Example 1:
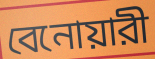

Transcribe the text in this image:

বেনোয়ারী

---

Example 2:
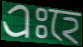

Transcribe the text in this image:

এঃহে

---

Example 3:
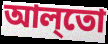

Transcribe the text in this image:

আল্‌তো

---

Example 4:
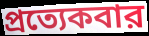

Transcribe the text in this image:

প্রত্যেকবার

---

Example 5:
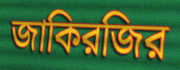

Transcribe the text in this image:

জাকিরজির